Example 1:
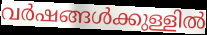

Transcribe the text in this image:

വർഷങ്ങൾക്കുള്ളിൽ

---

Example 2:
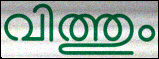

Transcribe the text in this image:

വിത്തും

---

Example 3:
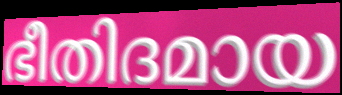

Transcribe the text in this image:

ഭീതിദമായ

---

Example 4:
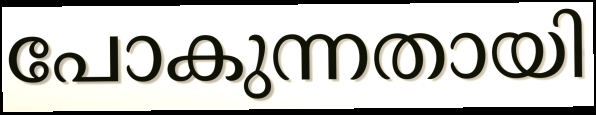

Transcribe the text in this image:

പോകുന്നതായി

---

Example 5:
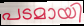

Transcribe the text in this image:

പടമായി